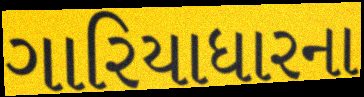
ગારિયાધારના